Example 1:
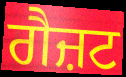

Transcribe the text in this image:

ਗੈਜ਼ਟ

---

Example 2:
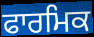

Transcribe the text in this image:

ਫਾਰਮਿਕ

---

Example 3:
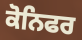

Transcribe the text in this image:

ਕੋਨਿਫਰ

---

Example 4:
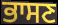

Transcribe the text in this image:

ਭਾਸਣ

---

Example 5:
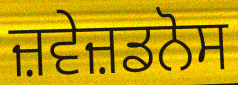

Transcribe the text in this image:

ਜ਼ਵੇਜ਼ਡਨੋਸ